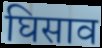
घिसाव